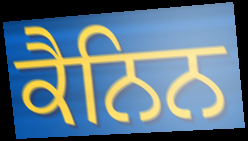
ਕੈਨਿਨ